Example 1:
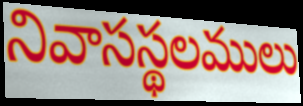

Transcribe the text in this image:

నివాసస్థలములు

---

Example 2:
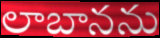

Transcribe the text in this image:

లాబానను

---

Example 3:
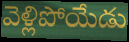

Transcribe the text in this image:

వెళ్లిపోయేడు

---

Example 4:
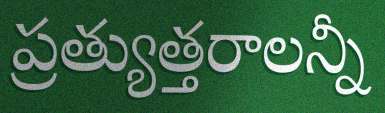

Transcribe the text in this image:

ప్రత్యుత్తరాలన్నీ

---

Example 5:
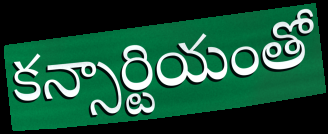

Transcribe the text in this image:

కన్సార్టియంతో